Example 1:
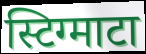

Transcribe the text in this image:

स्टिग्माटा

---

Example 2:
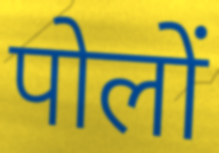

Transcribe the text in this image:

पोलों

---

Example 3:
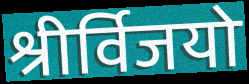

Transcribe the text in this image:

श्रीर्विजयो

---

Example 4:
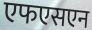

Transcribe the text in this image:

एफएसएन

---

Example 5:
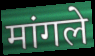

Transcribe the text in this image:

मांगले